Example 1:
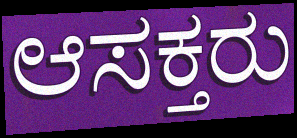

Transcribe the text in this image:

ಆಸಕ್ತರು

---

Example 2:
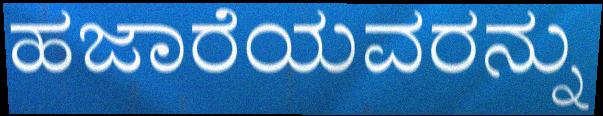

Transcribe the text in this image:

ಹಜಾರೆಯವರನ್ನು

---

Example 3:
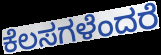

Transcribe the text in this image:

ಕೆಲಸಗಳೆಂದರೆ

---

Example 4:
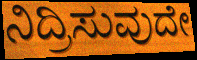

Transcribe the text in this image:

ನಿದ್ರಿಸುವುದೇ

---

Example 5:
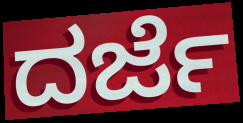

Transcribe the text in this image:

ದರ್ಜೆ